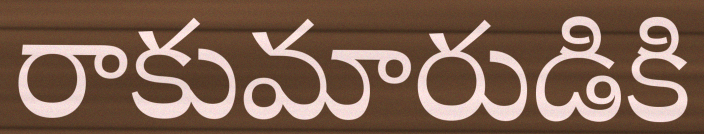
రాకుమారుడికి